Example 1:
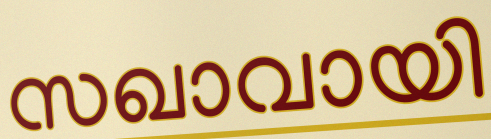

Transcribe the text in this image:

സഖാവായി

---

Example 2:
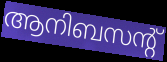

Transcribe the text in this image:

ആനിബസന്റ്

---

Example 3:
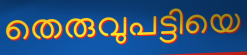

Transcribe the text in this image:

തെരുവുപട്ടിയെ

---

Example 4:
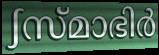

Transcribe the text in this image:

ഽസ്മാഭിർ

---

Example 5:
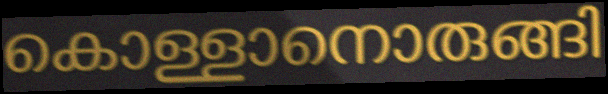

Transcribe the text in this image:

കൊള്ളാനൊരുങ്ങി